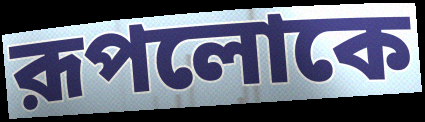
রূপলোকে